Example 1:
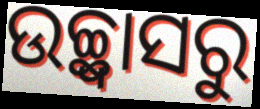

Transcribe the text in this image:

ଉଚ୍ଛ୍ୱାସରୁ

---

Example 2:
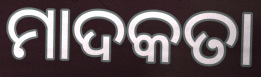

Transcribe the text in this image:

ମାଦକତା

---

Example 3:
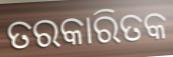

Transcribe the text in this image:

ତରକାରିତକ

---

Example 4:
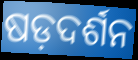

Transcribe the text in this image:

ଷଡ଼ଦର୍ଶନ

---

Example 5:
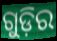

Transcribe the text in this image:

ଗୁଡ଼ିର